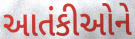
આતંકીઓને